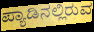
ಪ್ಯಾಡಿನಲ್ಲಿರುವ